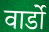
वार्डो